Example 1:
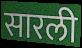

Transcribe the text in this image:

सारली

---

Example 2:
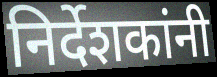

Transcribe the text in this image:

निर्देशकांनी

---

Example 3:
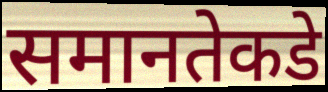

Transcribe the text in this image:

समानतेकडे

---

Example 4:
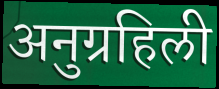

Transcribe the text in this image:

अनुग्रहिली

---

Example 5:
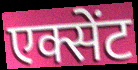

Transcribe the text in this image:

एक्सेंट